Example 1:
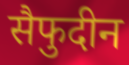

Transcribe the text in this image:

सैफुदीन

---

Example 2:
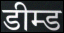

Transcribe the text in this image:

डीम्ड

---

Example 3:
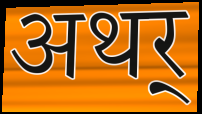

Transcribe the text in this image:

अथर्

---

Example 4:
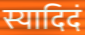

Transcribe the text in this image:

स्यादिदं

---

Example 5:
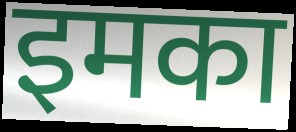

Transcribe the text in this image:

इमका